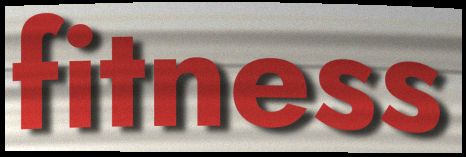
fitness